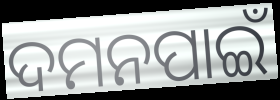
ଦମନପାଇଁ